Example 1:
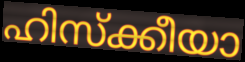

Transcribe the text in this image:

ഹിസ്ക്കീയാ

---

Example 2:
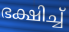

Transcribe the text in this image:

ഭക്ഷിച്ച്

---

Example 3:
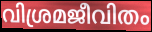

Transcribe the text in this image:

വിശ്രമജീവിതം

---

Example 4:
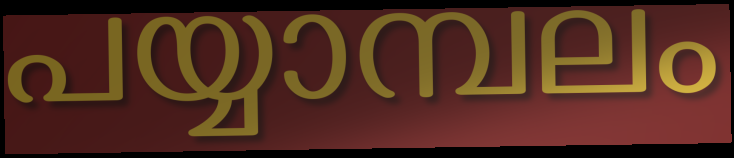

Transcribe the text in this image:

പയ്യാമ്പലം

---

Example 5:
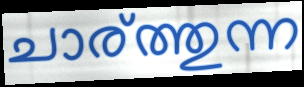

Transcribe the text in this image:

ചാര്ത്തുന്ന